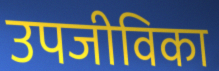
उपजीविका